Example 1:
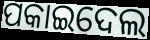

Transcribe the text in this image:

ପକାଇଦେଲ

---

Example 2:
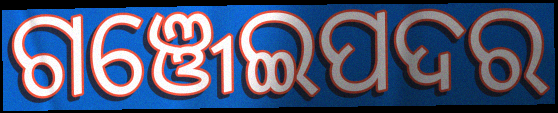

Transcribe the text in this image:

ଗଞ୍ଜେଇପଦର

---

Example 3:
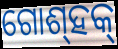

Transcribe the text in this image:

ଗୋଶ୍‍ହକ୍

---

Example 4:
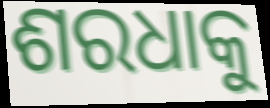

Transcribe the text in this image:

ଶରଧାକୁ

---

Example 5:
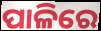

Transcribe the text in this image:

ପାଳିରେ